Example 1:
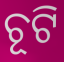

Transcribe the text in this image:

ଚୂଟି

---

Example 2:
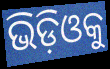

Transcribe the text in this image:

ଭିଡ଼ିଓକୁ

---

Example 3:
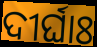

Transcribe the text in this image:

ଦୀର୍ଘାଃ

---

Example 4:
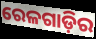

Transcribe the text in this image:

ରେଳଗାଡ଼ିର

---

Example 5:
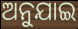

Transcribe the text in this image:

ଅନୁଯାଇ